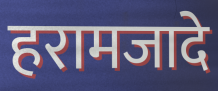
हरामजादे